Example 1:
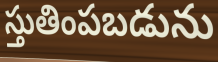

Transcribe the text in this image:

స్తుతింపబడును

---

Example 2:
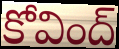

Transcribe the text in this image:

కోవింద్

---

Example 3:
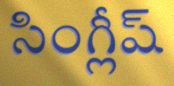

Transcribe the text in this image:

సింగ్లీష్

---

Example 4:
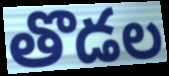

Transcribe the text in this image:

తొడల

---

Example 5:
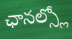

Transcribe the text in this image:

ఛానల్స్లో